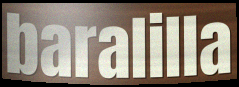
baralilla